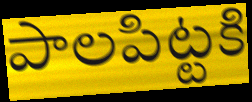
పాలపిట్టకి